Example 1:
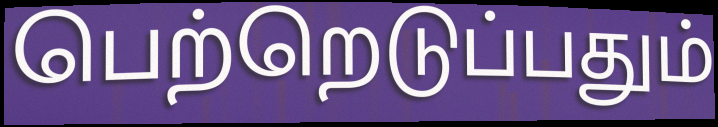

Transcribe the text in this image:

பெற்றெடுப்பதும்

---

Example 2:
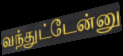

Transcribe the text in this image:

வந்துட்டேன்னு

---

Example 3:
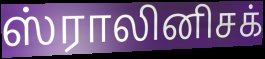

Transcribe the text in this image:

ஸ்ராலினிசக்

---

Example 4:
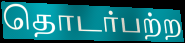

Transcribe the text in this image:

தொடர்பற்ற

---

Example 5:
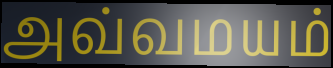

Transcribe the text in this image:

அவ்வமயம்